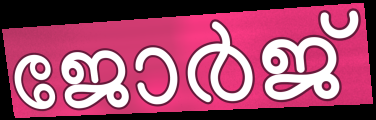
ജോർജ്